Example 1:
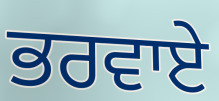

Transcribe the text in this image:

ਭਰਵਾਏ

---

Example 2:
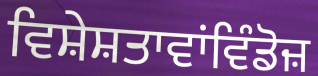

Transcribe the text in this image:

ਵਿਸ਼ੇਸ਼ਤਾਵਾਂਵਿੰਡੋਜ਼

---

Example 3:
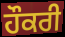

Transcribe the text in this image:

ਹੌਕਰੀ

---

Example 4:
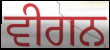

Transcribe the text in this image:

ਵੀਗਨ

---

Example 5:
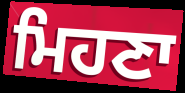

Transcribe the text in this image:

ਮਿਹਣਾ